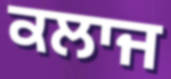
ਕਲਾਜ